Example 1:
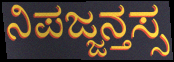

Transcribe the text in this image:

ನಿಪಜ್ಜನ್ತಸ್ಸ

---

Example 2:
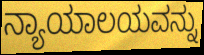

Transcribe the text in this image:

ನ್ಯಾಯಾಲಯವನ್ನು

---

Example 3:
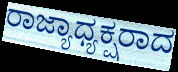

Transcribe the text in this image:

ರಾಜ್ಯಾಧ್ಯಕ್ಷರಾದ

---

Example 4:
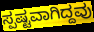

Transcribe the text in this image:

ಸ್ಪಷ್ಟವಾಗಿದ್ದವು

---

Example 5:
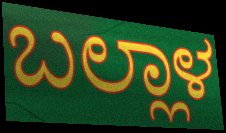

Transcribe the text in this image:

ಬಲ್ಲಾಳ